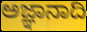
ಅಜ್ಞಾನಾದಿ